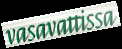
vasavattissa